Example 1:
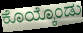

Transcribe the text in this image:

ಕೊಯ್ಕೊಂಡು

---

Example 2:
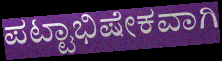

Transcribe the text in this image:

ಪಟ್ಟಾಭಿಷೇಕವಾಗಿ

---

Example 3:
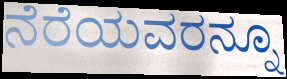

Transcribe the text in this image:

ನೆರೆಯವರನ್ನೂ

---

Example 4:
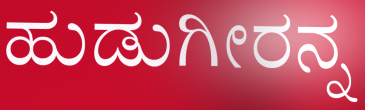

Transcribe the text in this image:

ಹುಡುಗೀರನ್ನ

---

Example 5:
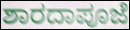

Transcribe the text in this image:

ಶಾರದಾಪೂಜೆ